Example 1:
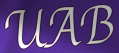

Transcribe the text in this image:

UAB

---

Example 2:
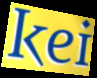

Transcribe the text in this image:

kei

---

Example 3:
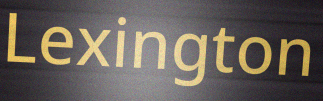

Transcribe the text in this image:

Lexington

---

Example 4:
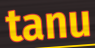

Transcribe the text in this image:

tanu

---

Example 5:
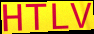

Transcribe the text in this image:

HTLV